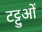
टट्टुओं